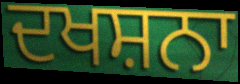
ਦਖਸ਼ਨਾ